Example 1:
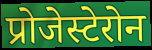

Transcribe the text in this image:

प्रोजेस्टेरोन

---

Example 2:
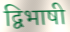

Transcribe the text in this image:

द्विभाषी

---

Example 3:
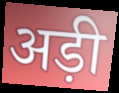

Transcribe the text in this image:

अड़ी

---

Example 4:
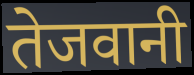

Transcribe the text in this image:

तेजवानी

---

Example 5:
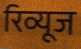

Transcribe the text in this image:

रिव्यूज